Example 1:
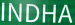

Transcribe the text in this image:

INDHA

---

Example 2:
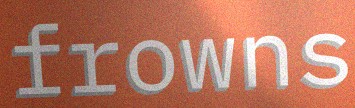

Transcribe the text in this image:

frowns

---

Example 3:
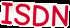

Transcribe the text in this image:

ISDN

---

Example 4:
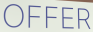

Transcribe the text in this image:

OFFER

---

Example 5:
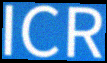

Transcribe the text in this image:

ICR